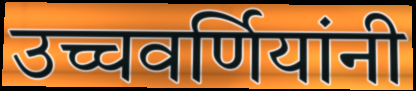
उच्चवर्णियांनी